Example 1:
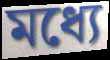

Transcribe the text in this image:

মধ্যে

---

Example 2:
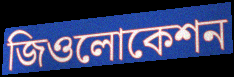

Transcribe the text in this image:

জিওলোকেশন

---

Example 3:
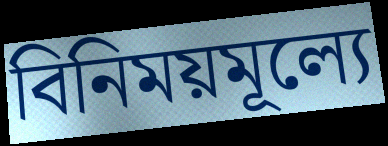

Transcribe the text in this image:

বিনিময়মূল্যে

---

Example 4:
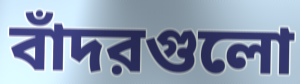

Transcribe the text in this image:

বাঁদরগুলো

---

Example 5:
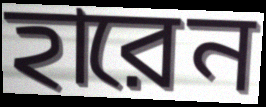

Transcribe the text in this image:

হারেন